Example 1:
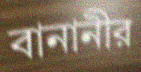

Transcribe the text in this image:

বানানীর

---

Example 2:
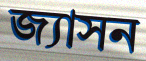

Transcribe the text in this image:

জ্যাসন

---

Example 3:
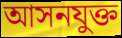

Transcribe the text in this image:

আসনযুক্ত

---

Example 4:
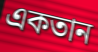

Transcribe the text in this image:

একতান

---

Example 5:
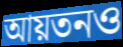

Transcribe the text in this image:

আয়তনও